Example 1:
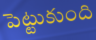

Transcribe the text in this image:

పెట్టుకుంది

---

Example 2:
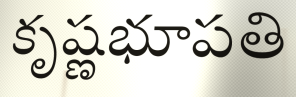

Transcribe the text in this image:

కృష్ణభూపతి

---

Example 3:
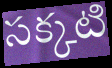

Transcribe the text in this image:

సక్కటి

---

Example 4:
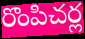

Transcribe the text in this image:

రొంపిచర్ల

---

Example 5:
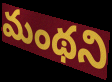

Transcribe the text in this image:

మంథని